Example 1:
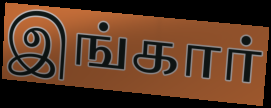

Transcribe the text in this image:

இங்கார்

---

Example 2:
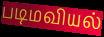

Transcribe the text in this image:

படிமவியல்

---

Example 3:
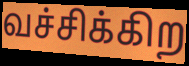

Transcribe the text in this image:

வச்சிக்கிற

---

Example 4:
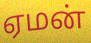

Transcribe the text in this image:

ஏமன்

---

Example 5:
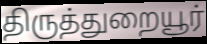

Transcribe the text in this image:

திருத்துறையூர்